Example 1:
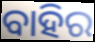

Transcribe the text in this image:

ବାହିର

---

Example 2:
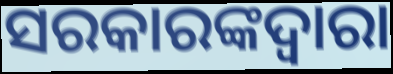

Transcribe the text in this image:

ସରକାରଙ୍କଦ୍ବାରା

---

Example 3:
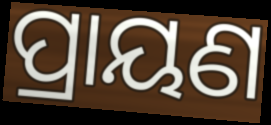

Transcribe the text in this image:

ପ୍ରାୟଣ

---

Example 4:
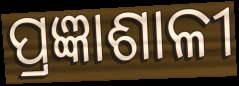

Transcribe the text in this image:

ପ୍ରଜ୍ଞାଶାଳୀ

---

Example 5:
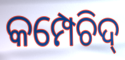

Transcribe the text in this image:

କମ୍ପେଚିଦ୍